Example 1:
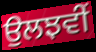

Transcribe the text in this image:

ਉਲਝਵੀਂ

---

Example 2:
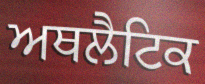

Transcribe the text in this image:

ਅਥਲੈਟਿਕ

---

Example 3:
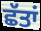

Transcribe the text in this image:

ਛੱਤਾਂ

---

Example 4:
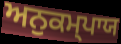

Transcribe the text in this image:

ਅਨੁਕਮ੍ਪਾਯ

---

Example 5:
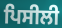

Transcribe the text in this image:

ਪਿਸੀਲੀ